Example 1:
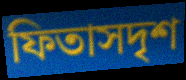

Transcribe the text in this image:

ফিতাসদৃশ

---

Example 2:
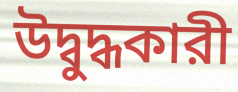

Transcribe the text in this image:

উদ্বুদ্ধকারী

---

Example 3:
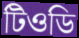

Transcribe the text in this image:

টিওডি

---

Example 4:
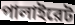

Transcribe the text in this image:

পালাইরেট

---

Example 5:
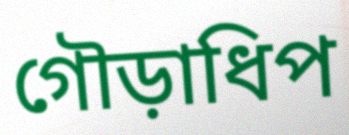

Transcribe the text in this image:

গৌড়াধিপ